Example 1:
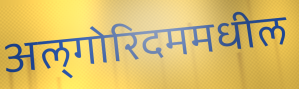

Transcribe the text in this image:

अल्गोरिदममधील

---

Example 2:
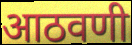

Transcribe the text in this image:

आठवणी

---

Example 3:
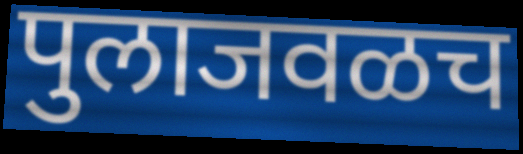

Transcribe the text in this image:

पुलाजवळच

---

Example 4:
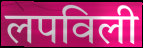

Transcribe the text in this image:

लपविली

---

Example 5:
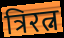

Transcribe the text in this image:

त्रिरत्न